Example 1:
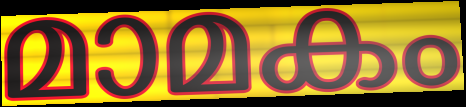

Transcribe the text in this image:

മാമകം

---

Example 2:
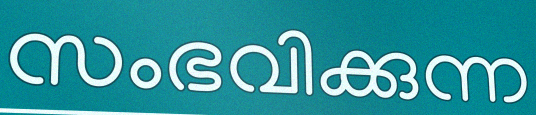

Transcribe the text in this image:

സംഭവിക്കുന്ന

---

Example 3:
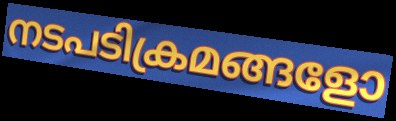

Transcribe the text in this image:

നടപടിക്രമങ്ങളോ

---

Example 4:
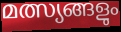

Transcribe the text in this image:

മത്സ്യങ്ങളും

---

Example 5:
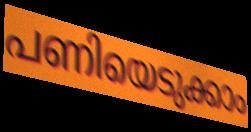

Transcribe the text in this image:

പണിയെടുക്കാം